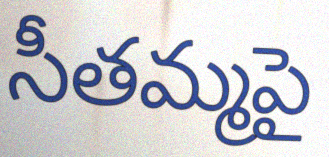
సీతమ్మపై